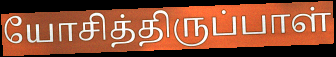
யோசித்திருப்பாள்